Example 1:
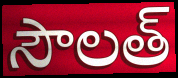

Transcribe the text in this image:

సౌలత్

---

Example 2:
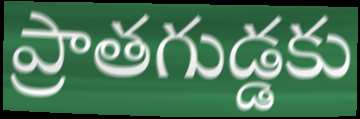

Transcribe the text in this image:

ప్రాతగుడ్డకు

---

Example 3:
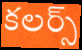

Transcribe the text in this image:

కలర్స్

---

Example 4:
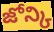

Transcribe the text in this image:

జోన్కి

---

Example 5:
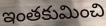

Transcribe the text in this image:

ఇంతకుమించి